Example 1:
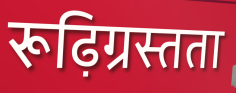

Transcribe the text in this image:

रूढ़िग्रस्तता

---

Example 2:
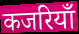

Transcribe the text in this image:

कजरियाँ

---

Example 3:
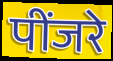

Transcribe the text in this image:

पींजरे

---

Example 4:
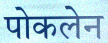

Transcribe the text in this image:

पोकलेन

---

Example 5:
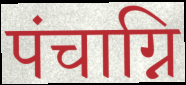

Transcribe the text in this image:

पंचाग्नि